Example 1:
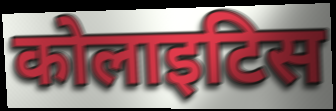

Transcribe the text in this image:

कोलाइटिस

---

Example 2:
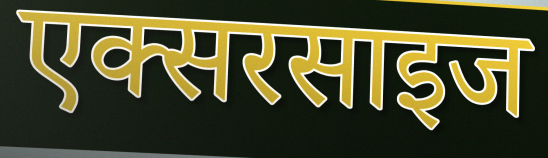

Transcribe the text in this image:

एक्सरसाइज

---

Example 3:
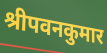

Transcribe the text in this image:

श्रीपवनकुमार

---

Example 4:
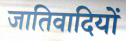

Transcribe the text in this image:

जातिवादियों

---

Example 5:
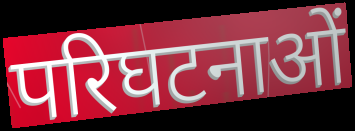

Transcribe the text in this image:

परिघटनाओं